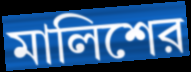
মালিশের